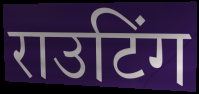
राउटिंग